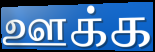
ஊக்க